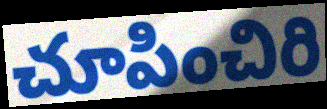
చూపించిరి